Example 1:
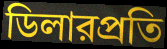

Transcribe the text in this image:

ডিলারপ্রতি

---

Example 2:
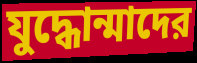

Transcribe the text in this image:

যুদ্ধোন্মাদের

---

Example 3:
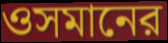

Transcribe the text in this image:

ওসমানের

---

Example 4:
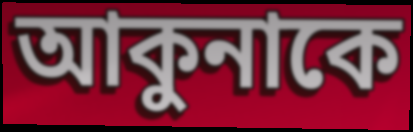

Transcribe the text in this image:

আকুনাকে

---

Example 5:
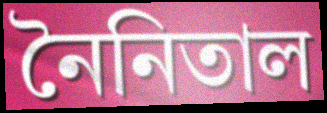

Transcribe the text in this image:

নৈনিতাল